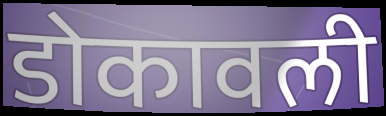
डोकावली